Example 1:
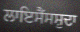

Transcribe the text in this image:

ਲਾਇਸੈਂਸਸ਼ੁਦਾ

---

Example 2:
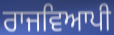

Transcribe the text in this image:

ਰਾਜਵਿਆਪੀ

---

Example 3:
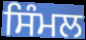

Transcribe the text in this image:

ਸਿੰਮਲ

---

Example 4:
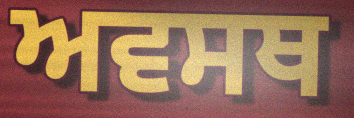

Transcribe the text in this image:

ਅਵਸਥ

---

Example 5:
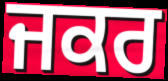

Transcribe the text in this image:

ਜਕਰ